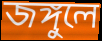
জঙ্গুলে